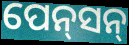
ପେନ୍‍ସନ୍